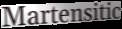
Martensitic